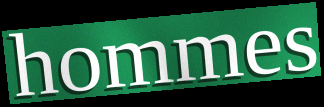
hommes